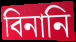
বিনানি